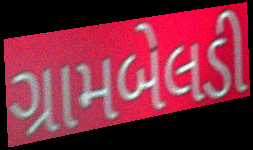
ગ્રામબેલડી